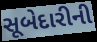
સૂબેદારીની